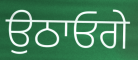
ਉਠਾਓਗੇ